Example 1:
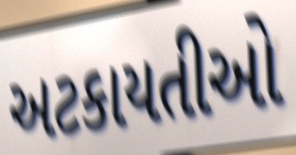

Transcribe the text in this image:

અટકાયતીઓ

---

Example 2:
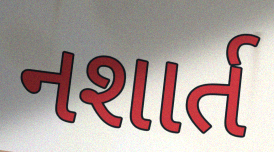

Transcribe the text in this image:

નશાર્ત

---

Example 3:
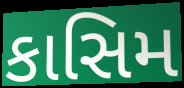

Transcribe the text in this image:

કાસિમ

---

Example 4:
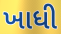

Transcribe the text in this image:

ખાધી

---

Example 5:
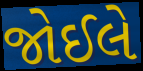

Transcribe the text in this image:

જોઈલે